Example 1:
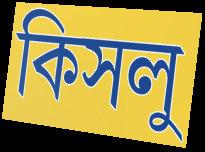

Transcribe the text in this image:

কিসলু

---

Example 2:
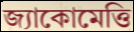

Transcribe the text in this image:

জ্যাকোমেত্তি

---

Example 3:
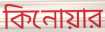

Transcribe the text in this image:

কিনোয়ার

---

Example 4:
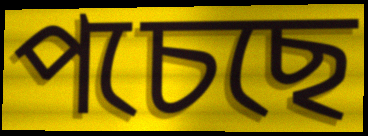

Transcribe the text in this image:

পচেছে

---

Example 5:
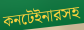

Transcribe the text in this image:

কনটেইনারসহ